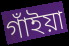
গাঁইয়া